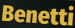
Benetti